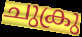
ചുക്രു